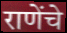
राणेंचे